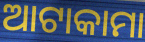
ଆଟାକାମା